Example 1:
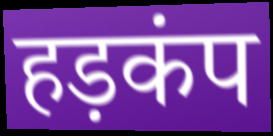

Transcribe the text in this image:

हड़कंप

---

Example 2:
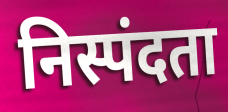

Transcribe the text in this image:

निस्पंदता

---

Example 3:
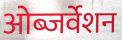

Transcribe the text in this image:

ओब्ज़र्वेशन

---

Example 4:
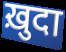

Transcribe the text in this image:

ख़ुदा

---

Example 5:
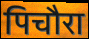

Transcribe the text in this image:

पिचौरा